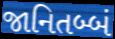
જાનિતબ્બં